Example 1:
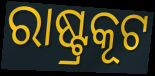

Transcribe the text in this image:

ରାଷ୍ଟ୍ରକୂଟ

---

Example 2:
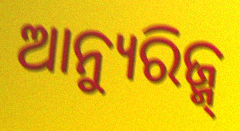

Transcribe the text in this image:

ଆନ୍ୟୁରିଜ୍ମ୍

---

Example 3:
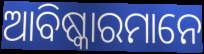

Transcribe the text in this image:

ଆବିଷ୍କାରମାନେ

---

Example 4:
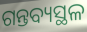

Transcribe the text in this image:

ଗନ୍ତବ୍ୟସ୍ଥଳ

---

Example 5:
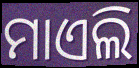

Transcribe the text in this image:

ମାଏଲି